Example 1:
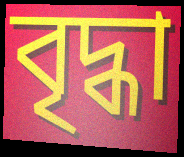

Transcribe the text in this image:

বৃদ্ধা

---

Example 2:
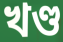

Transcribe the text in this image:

খণ্ড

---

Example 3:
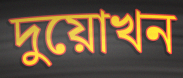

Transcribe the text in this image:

দুয়োখন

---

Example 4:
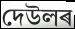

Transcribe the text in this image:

দেউলৰ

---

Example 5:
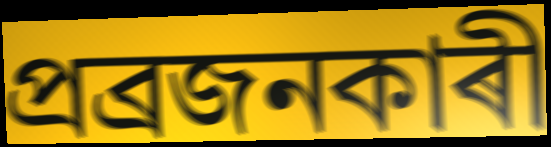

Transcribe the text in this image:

প্ৰব্ৰজনকাৰী